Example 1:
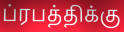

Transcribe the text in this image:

ப்ரபத்திக்கு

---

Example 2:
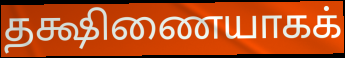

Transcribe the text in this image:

தக்ஷிணையாகக்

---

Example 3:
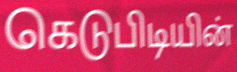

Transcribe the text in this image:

கெடுபிடியின்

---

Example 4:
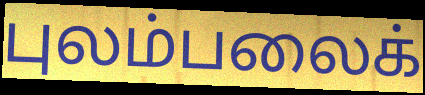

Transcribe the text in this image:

புலம்பலைக்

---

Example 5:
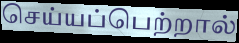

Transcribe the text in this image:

செய்யப்பெற்றால்